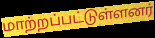
மாற்றப்பட்டுள்ளனர்